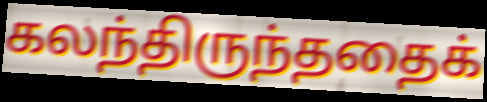
கலந்திருந்ததைக்